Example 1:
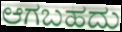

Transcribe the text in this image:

ಆಗಬಹದು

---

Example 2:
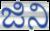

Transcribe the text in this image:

ಜಿನಿ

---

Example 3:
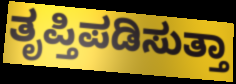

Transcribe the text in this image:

ತೃಪ್ತಿಪಡಿಸುತ್ತಾ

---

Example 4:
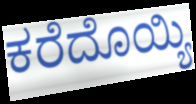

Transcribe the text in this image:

ಕರೆದೊಯ್ಯಿ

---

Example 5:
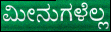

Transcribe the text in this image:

ಮೀನುಗಳೆಲ್ಲ